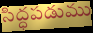
సిద్ధపడుము